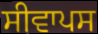
ਸੀਵਾਪਸ